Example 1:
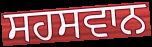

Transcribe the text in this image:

ਸਹਸਵਾਨ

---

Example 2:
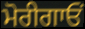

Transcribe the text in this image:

ਮੋਰੀਗਾਓਂ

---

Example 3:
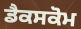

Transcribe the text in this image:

ਡੈਕਸਕੋਮ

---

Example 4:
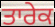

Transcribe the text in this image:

ਤਾਰੇਕ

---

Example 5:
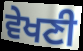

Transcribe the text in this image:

ਵੇਖਣੀ